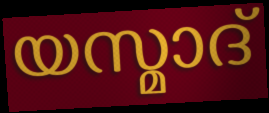
യസ്മാദ്